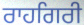
ਰਾਹਗਿਰੀ